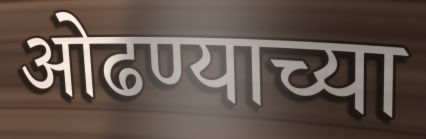
ओढण्याच्या